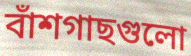
বাঁশগাছগুলো